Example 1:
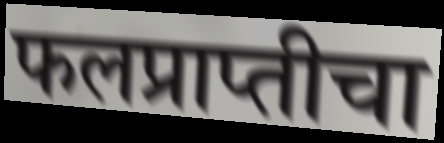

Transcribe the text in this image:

फलप्राप्तीचा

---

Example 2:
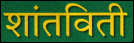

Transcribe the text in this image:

शांतविती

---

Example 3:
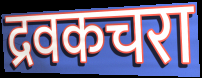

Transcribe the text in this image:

द्रवकचरा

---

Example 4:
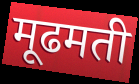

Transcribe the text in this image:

मूढमती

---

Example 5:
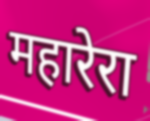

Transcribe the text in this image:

महारेरा